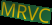
MRVC